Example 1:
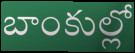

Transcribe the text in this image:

బాంకుల్లో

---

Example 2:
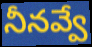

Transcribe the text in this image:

నీనవ్వే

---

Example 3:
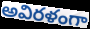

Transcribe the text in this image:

అవిరళంగా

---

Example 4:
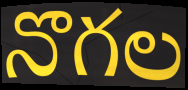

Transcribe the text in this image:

నొగల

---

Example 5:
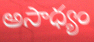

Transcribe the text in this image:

అసాధ్యం